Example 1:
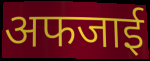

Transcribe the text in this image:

अफजाई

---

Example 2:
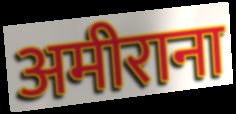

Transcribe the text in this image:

अमीराना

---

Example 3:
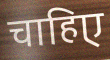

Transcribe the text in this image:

चाहिए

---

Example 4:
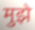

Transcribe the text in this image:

मुझे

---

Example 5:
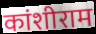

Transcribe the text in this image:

कांशीराम